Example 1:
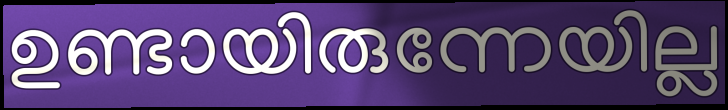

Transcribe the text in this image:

ഉണ്ടായിരുന്നേയില്ല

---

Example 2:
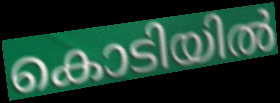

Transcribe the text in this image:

കൊടിയിൽ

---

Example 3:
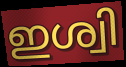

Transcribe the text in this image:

ഇശ്വി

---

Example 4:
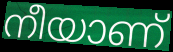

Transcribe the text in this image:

നീയാണ്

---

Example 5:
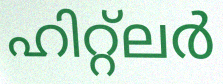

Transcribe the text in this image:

ഹിറ്റ്ലർ